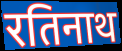
रतिनाथ